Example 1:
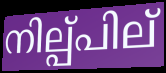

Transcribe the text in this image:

നില്പ്പില്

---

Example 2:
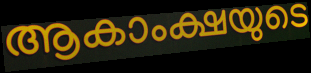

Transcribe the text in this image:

ആകാംക്ഷയുടെ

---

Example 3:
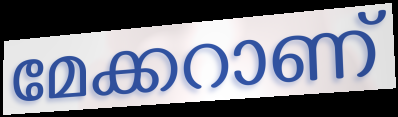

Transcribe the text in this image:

മേക്കറാണ്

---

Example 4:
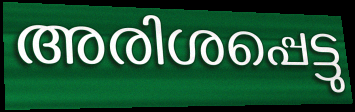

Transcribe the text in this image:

അരിശപ്പെട്ടു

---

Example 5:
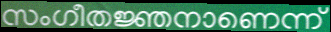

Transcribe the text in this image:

സംഗീതജ്ഞനാണെന്ന്